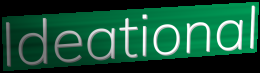
Ideational